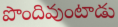
పొందివుంటాడు